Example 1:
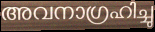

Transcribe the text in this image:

അവനാഗ്രഹിച്ചു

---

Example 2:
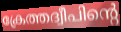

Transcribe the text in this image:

ക്രേത്തദ്വീപിന്റെ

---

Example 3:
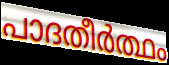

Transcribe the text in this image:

പാദതീർത്ഥം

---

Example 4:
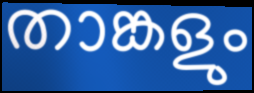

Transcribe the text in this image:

താങ്കളും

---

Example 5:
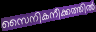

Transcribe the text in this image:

സൈനികനീക്കത്തിൽ